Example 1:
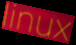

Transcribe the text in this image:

linux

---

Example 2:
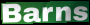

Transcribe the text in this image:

Barns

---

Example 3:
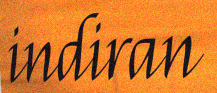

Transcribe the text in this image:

indiran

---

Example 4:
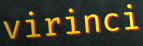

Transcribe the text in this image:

virinci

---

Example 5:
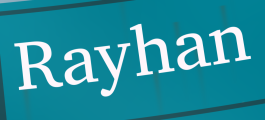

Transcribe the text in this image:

Rayhan